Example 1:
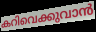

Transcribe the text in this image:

കറിവെക്കുവാൻ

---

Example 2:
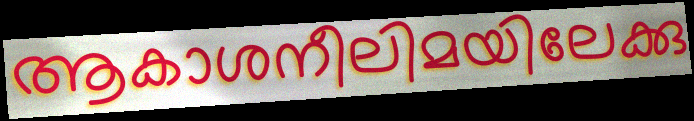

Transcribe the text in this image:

ആകാശനീലിമയിലേക്കു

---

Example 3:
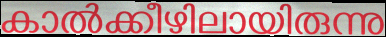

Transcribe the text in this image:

കാൽക്കീഴിലായിരുന്നു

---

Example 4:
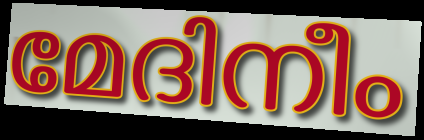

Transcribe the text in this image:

മേദിനീം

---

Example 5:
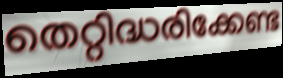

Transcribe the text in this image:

തെറ്റിദ്ധരിക്കേണ്ട